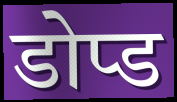
डोप्ड